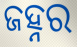
ଜହ୍ନର